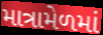
માત્રામેળમાં